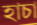
হাচা